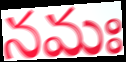
నమః